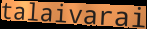
talaivarai